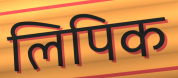
लिपिक